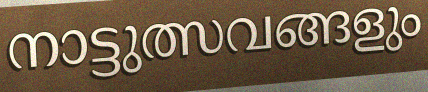
നാട്ടുത്സവങ്ങളും